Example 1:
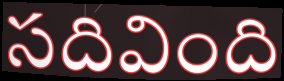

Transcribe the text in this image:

సదివింది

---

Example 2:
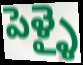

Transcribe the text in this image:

పెళ్ళై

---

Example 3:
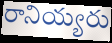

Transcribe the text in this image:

రానియ్యరు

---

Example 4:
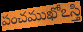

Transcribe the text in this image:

పంచముఖోఽస్తి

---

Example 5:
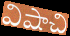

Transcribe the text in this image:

విషాచి